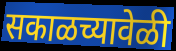
सकाळच्यावेळी